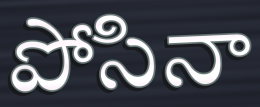
పోసినా